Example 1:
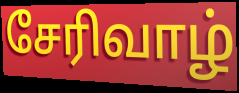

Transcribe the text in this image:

சேரிவாழ்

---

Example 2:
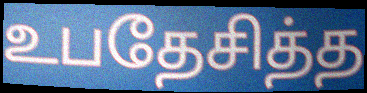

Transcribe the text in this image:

உபதேசித்த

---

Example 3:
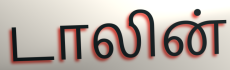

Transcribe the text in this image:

டாலின்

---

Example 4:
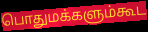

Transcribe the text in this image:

பொதுமக்களும்கூட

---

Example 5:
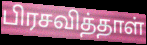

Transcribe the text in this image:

பிரசவித்தாள்